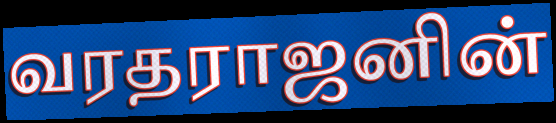
வரதராஜனின்